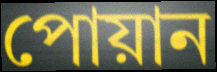
পোয়ান